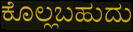
ಕೊಲ್ಲಬಹುದು